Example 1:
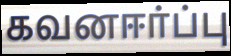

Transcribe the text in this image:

கவனஈர்ப்பு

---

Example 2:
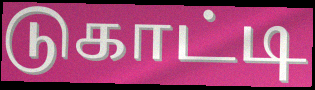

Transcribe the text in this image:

டுகாட்டி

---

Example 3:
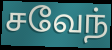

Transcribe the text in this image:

சவேந்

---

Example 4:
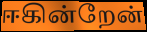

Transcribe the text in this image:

ஈகின்றேன்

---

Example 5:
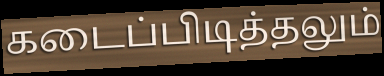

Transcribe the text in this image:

கடைப்பிடித்தலும்